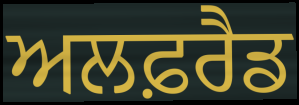
ਅਲਫ਼ਰੈਡ